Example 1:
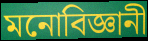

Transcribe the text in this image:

মনোবিজ্ঞানী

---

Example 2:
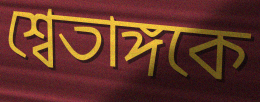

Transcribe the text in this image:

শ্বেতাঙ্গকে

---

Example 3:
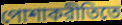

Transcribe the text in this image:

পোশাকরীতিতে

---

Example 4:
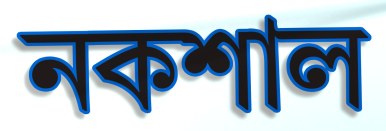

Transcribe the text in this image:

নকশাল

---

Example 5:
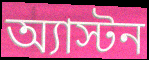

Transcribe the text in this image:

অ্যাস্টন